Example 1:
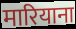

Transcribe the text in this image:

मारियाना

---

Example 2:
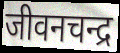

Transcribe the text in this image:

जीवनचन्द्र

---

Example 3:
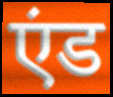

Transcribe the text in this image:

एंड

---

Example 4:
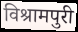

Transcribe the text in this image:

विश्रामपुरी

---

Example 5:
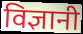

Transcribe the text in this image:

विज्ञानी